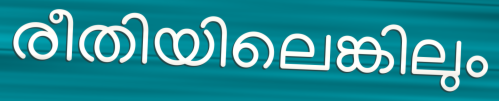
രീതിയിലെങ്കിലും